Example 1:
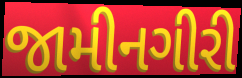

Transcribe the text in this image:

જામીનગીરી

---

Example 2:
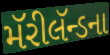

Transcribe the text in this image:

મૅરીલૅન્ડના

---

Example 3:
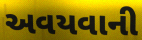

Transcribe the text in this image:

અવયવાની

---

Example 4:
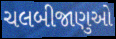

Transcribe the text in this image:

ચલબીજાણુઓ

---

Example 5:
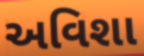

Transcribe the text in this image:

અવિશા